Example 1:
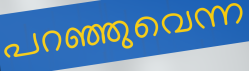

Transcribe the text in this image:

പറഞ്ഞുവെന്ന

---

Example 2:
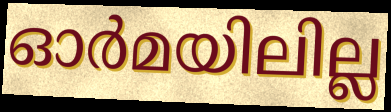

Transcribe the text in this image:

ഓർമയിലില്ല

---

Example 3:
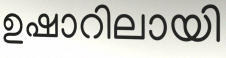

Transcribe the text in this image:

ഉഷാറിലായി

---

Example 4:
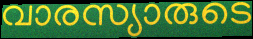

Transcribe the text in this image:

വാരസ്യാരുടെ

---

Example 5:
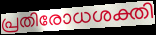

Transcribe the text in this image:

പ്രതിരോധശക്തി